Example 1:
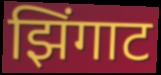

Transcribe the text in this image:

झिंगाट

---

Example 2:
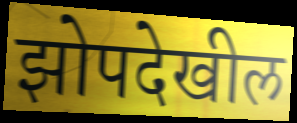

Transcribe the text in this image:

झोपदेखील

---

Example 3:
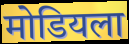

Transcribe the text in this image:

मोडियला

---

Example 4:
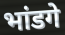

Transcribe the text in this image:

भांडगे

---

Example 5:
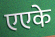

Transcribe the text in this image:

एएके